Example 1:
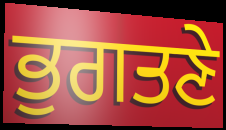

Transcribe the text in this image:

ਭੁਗਤਣੇ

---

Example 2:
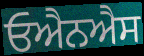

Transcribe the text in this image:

ਓਐਨਐਸ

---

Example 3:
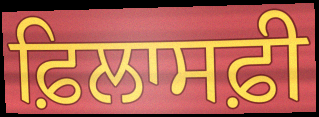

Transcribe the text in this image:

ਫ਼ਿਲਾਸਫ਼ੀ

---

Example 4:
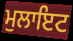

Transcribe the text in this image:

ਮੁਲਾਇਟ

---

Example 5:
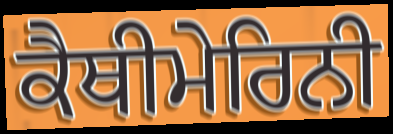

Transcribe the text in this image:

ਕੈਥੀਮੇਰਿਨੀ